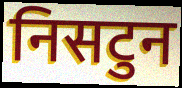
निसटुन